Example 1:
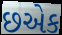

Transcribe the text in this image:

છએક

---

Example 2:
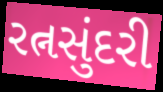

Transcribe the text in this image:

રત્નસુંદરી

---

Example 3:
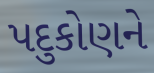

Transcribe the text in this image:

પદુકોણને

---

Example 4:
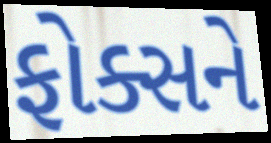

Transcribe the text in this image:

ફોક્સને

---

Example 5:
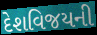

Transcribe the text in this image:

દેશવિજયની